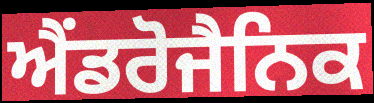
ਐਂਡਰੋਜੈਨਿਕ